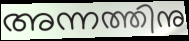
അന്നത്തിനു